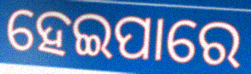
ହେଇପାରେ